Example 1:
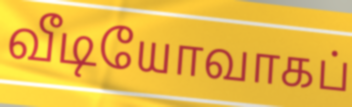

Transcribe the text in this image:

வீடியோவாகப்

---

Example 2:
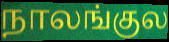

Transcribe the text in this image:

நாலங்குல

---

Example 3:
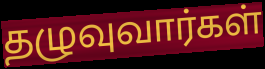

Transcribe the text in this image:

தழுவுவார்கள்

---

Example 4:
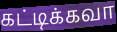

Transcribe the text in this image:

கட்டிக்கவா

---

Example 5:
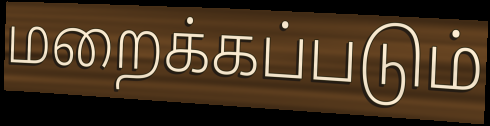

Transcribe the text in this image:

மறைக்கப்படும்